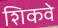
शिकवे